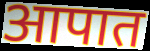
आपात